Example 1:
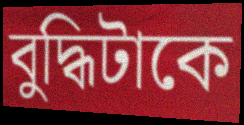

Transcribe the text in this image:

বুদ্ধিটাকে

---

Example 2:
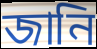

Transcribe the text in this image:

জানি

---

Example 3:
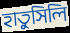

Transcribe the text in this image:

হাতুসিলি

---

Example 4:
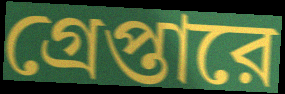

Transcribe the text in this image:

গ্রেপ্তারে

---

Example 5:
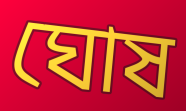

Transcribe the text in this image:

ঘোষ